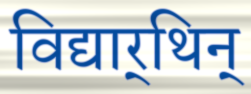
विद्यार्थिन्